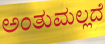
ಅಂತುಮಲ್ಲದೆ